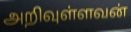
அறிவுள்ளவன்